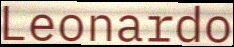
Leonardo